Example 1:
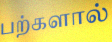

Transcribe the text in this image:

பற்களால்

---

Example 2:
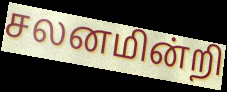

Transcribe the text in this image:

சலனமின்றி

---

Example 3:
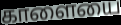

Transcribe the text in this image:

காளையை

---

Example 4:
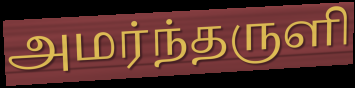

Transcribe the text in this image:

அமர்ந்தருளி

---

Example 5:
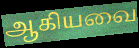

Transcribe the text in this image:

ஆகியவை